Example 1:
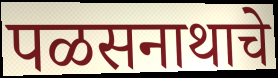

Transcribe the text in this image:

पळसनाथाचे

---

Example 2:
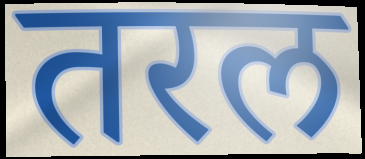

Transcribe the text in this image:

तरल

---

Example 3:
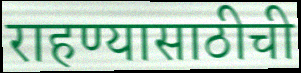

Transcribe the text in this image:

राहण्यासाठीची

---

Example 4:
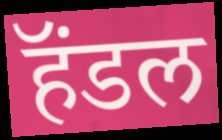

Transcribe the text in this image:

हॅंडल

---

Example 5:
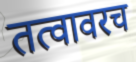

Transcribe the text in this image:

तत्वावरच